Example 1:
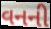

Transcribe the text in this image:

વનની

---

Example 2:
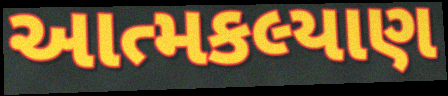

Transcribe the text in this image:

આત્મકલ્યાણ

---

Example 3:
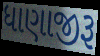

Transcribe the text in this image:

ધાણાજીરૂ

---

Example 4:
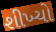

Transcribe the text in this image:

શીખ્યો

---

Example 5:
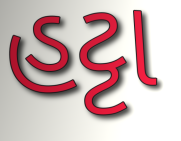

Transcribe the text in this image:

હટ્ટા